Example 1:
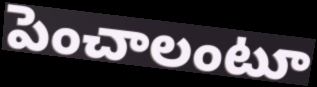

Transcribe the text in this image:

పెంచాలంటూ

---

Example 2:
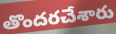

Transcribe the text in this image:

తొందరచేశారు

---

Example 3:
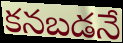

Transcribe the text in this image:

కనబడనే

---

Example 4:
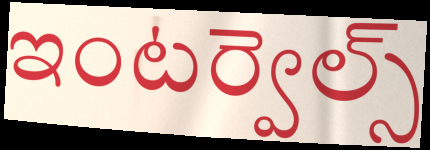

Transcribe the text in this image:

ఇంటర్వెల్స్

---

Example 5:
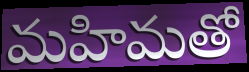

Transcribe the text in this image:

మహిమతో